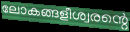
ലോകങ്ങളീശ്വരന്റെ